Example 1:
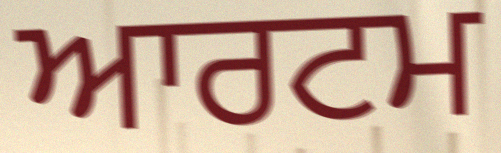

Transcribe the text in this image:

ਆਰਟਮ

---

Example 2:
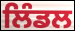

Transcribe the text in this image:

ਲਿੰਡਲ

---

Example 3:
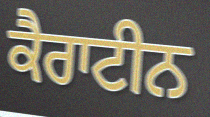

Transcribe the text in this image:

ਕੈਰਾਟੀਨ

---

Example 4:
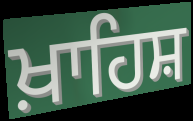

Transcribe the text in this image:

ਖ਼ਾਹਿਸ਼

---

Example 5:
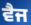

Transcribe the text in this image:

ਵੈਜ